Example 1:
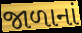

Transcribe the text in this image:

જાળાનાં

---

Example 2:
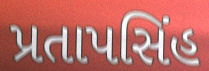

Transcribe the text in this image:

પ્રતાપસિંહ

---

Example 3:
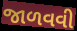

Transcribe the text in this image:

જાળવવી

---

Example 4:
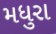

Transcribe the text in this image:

મધુરા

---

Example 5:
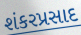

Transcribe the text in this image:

શંકરપ્રસાદ